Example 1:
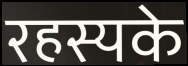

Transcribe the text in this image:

रहस्यके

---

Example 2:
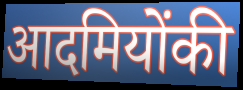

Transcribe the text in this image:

आदमियोंकी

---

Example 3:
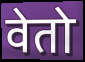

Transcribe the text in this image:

वेतो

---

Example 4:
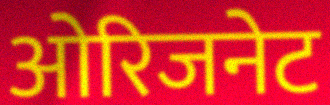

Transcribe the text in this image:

ओरिजनेट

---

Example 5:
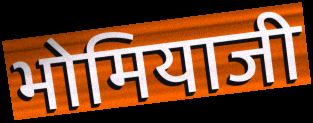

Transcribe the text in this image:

भोमियाजी